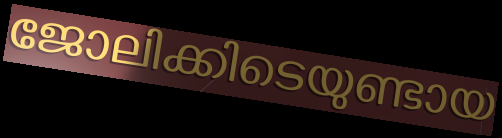
ജോലിക്കിടെയുണ്ടായ